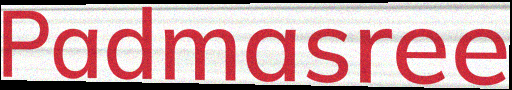
Padmasree